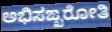
ಅಭಿಸಙ್ಖರೋತಿ